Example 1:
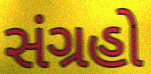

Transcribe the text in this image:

સંગ્રહો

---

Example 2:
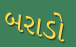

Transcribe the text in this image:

બરાડો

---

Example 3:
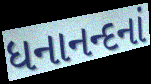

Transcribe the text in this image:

ધનાનન્દનાં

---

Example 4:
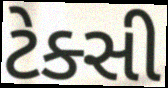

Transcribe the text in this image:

ટેક્સી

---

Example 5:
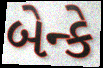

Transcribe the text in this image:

બેન્કે